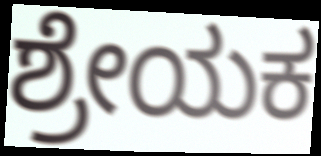
ಶ್ರೇಯಕ